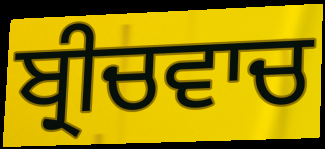
ਬ੍ਰੀਚਵਾਚ